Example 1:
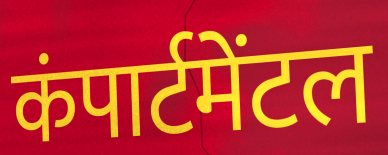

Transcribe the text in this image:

कंपार्टमेंटल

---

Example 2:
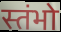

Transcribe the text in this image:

स्तंभो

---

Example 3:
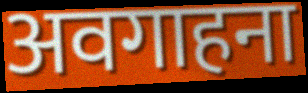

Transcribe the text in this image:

अवगाहना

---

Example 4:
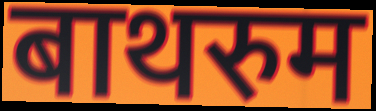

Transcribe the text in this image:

बाथरुम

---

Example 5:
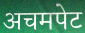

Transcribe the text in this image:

अचमपेट